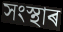
সংস্থাৰ